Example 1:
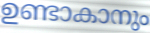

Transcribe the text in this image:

ഉണ്ടാകാനും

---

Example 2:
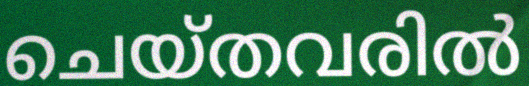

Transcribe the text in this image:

ചെയ്തവരിൽ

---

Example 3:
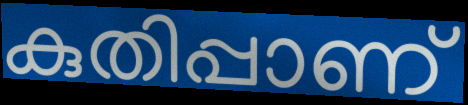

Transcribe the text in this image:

കുതിപ്പാണ്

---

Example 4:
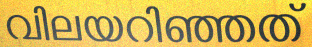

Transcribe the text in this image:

വിലയറിഞ്ഞത്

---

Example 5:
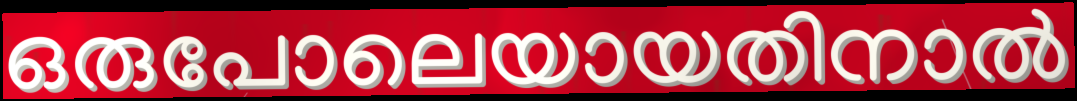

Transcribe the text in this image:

ഒരുപോലെയായതിനാൽ